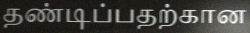
தண்டிப்பதற்கான